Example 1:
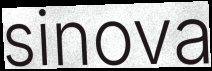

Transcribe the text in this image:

sinova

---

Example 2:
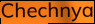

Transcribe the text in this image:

Chechnya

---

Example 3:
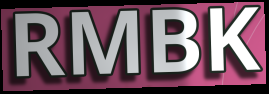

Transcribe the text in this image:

RMBK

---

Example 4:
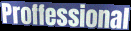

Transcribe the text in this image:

Proffessional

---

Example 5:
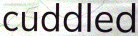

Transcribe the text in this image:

cuddled